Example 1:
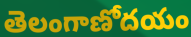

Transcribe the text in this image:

తెలంగాణోదయం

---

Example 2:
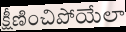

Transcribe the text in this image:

క్షీణించిపోయేలా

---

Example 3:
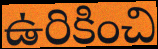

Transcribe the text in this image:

ఉరికించి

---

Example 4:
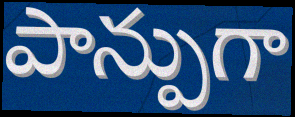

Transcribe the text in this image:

పాన్పుగా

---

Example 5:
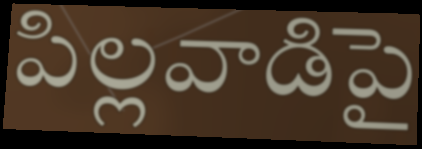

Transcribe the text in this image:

పిల్లవాడిపై